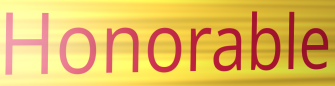
Honorable